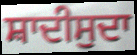
ਸ਼ਾਦੀਸੁਦਾ